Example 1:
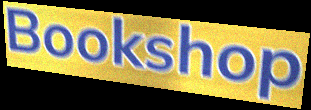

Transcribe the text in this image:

Bookshop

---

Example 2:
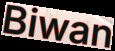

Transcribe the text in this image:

Biwan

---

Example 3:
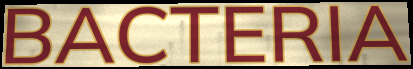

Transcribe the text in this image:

BACTERIA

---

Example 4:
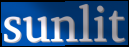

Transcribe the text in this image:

sunlit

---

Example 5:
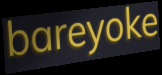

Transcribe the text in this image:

bareyoke